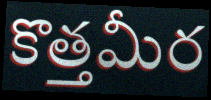
కొత్తమీర